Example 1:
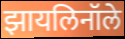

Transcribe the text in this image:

झायलिनॉले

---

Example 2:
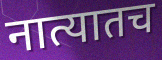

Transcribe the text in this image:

नात्यातच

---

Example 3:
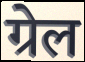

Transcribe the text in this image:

ग्रेल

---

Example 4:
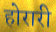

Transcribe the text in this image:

होरारी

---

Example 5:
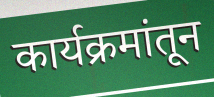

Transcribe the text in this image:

कार्यक्रमांतून